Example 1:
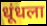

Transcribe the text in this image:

धूंधला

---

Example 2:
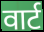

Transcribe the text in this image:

वार्ट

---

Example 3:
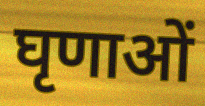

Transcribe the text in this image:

घृणाओं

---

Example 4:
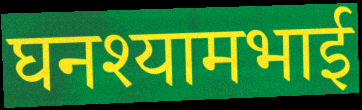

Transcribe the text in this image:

घनश्यामभाई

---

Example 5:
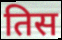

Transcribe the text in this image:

तिस